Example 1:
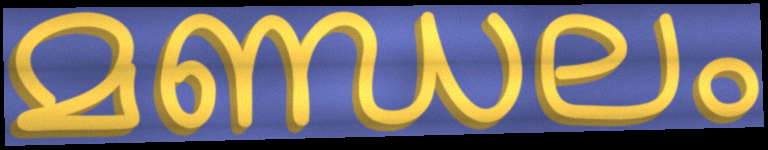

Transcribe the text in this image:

മണ്ഡലം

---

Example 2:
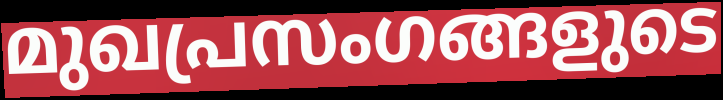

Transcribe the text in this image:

മുഖപ്രസംഗങ്ങളുടെ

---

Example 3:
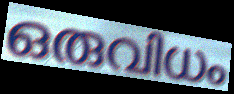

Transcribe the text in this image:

ഒരുവിധം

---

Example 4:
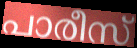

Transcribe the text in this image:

പാരീസ്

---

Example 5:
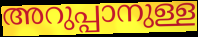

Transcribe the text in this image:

അറുപ്പാനുള്ള